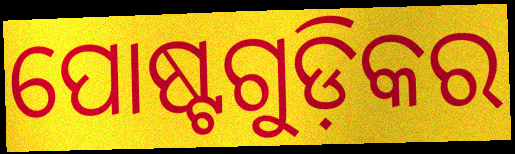
ପୋଷ୍ଟଗୁଡ଼ିକର